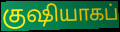
குஷியாகப்